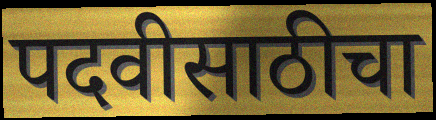
पदवीसाठीचा